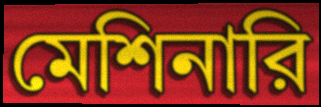
মেশিনারি